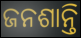
ଜନଶାନ୍ତି